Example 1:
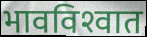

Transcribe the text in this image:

भावविश्वात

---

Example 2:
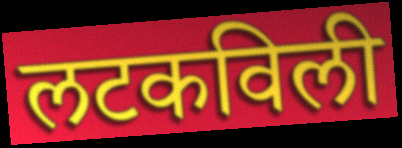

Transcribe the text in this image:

लटकविली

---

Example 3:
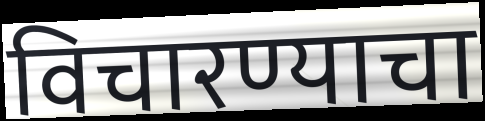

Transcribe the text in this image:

विचारण्याचा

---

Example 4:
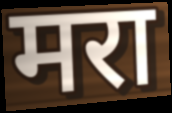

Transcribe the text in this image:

मरा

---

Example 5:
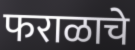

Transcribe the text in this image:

फराळाचे